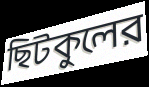
ছিটকুলের